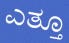
ಎತ್ತೂ